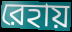
রেহায়